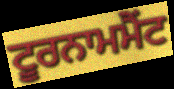
ਟੂਰਨਾਮਮੈਂਟ